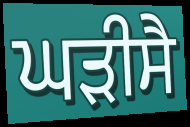
ਘੜੀਸੈ